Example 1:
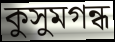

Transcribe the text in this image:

কুসুমগন্ধ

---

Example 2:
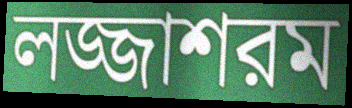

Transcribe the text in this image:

লজ্জাশরম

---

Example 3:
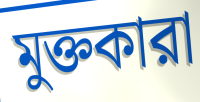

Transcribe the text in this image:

মুক্তকারা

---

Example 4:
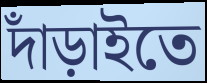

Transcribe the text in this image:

দাঁড়াইতে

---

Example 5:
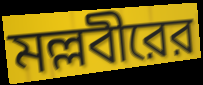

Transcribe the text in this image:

মল্লবীরের